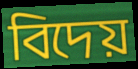
বিদেয়